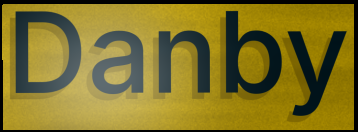
Danby